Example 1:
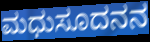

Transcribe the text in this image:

ಮಧುಸೂದನನ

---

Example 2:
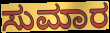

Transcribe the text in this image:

ಸುಮಾರ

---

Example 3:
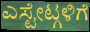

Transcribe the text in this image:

ಎಸ್ಟೇಟ್ಗಳಿಗೆ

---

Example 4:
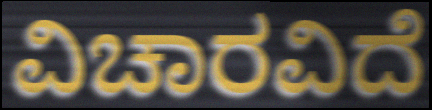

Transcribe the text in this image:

ವಿಚಾರವಿದೆ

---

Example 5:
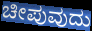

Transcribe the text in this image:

ಚೀಪುವುದು